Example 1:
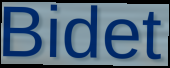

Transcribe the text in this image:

Bidet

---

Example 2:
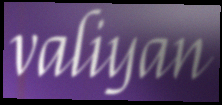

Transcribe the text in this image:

valiyan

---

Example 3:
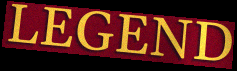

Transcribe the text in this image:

LEGEND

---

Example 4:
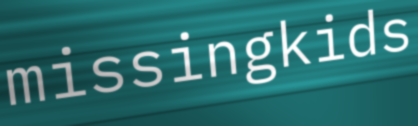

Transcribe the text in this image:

missingkids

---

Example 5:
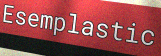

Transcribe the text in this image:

Esemplastic